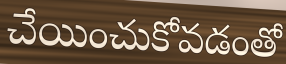
చేయించుకోవడంతో